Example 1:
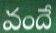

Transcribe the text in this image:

వందే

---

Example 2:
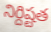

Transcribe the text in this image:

నిర్దిష్టత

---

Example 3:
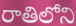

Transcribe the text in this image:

రాతిలోని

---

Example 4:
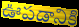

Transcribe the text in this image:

ఊపడానికి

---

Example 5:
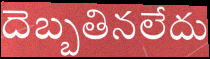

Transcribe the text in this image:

దెబ్బతినలేదు